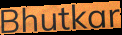
Bhutkar